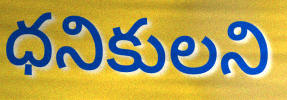
ధనికులని